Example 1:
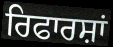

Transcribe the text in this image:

ਰਿਫਾਰਸ਼ਾਂ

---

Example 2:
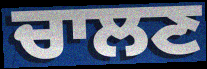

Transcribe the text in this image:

ਚਾਲਣ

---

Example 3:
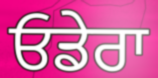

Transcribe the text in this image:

ਓਡੇਰਾ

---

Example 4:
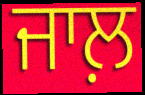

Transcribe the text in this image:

ਜਾਲ਼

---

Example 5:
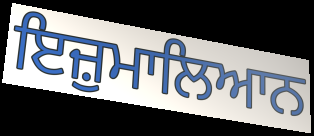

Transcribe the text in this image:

ਇਜ਼ੁਮਾਲਿਆਨ